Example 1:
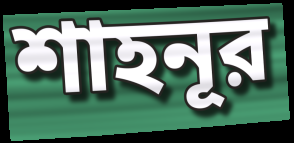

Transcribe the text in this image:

শাহনূর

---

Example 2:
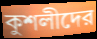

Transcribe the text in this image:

কুশলীদের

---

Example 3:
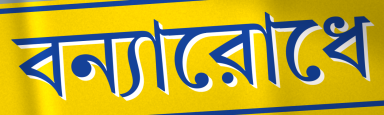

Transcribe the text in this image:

বন্যারোধে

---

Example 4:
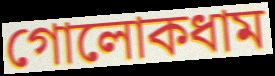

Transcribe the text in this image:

গোলোকধাম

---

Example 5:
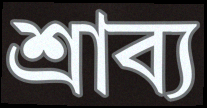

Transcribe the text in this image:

শ্রাব্য